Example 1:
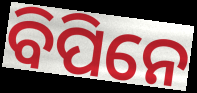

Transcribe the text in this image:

ବିପିନେ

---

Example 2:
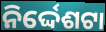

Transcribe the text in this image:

ନିର୍ଦ୍ଦେଶଟା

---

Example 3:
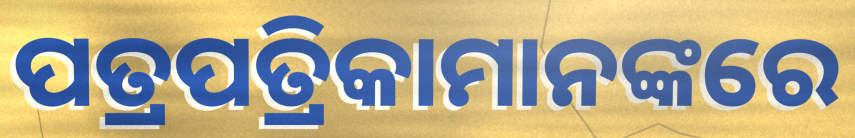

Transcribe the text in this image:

ପତ୍ରପତ୍ରିକାମାନଙ୍କରେ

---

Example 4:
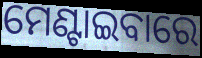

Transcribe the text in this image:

ମେଣ୍ଟାଇବାରେ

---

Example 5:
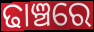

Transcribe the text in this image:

ଢାଞ୍ଚରେ